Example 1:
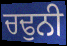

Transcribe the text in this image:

ਚਢੁਨੀ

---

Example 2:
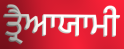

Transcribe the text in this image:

ਤ੍ਰੈਆਯਾਮੀ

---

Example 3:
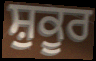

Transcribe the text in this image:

ਸ਼ੁਕੂਰ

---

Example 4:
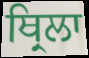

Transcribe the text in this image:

ਥ੍ਰਿਲਾ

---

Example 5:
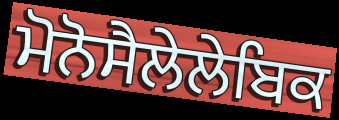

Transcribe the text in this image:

ਮੋਨੋਸੈਲੇਲੇਬਿਕ